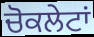
ਚੋਕਲੇਟਾਂ